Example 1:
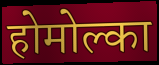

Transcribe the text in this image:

होमोल्का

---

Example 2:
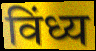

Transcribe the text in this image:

विंध्य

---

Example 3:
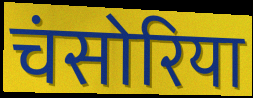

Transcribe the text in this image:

चंसोरिया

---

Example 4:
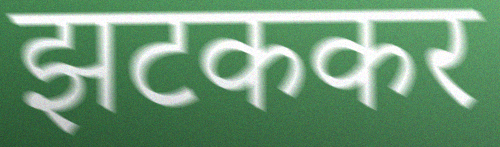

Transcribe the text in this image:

झटककर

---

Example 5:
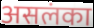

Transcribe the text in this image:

असलंका